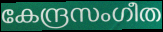
കേന്ദ്രസംഗീത